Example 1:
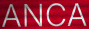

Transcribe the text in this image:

ANCA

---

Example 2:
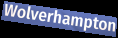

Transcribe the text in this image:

Wolverhampton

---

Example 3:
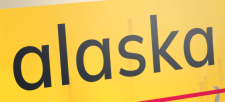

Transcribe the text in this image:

alaska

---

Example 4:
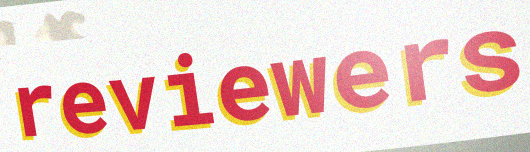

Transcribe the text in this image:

reviewers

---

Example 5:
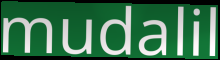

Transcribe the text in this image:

mudalil